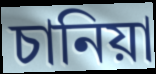
চানিয়া